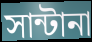
সান্টানা